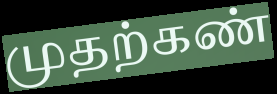
முதற்கண்